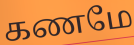
கணமே